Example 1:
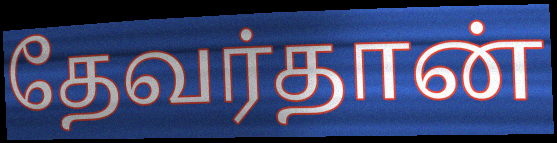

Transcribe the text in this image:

தேவர்தான்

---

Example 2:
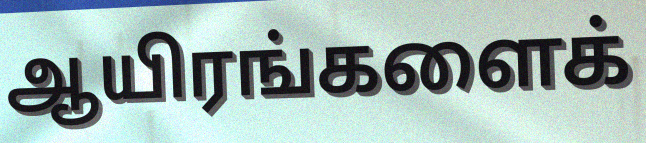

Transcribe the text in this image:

ஆயிரங்களைக்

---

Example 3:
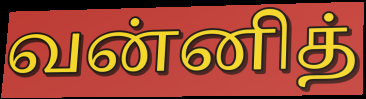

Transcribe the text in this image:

வன்னித்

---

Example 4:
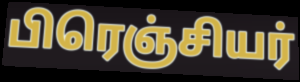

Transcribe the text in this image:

பிரெஞ்சியர்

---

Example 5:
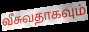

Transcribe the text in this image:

வீசுவதாகவும்